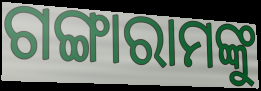
ଗଙ୍ଗାରାମଙ୍କୁ